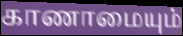
காணாமையும்